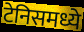
टेनिसमध्ये